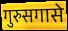
गुरुसगासे